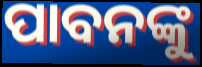
ପାବନଙ୍କୁ